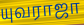
யுவராஜா